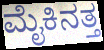
ಮೈಕಿನತ್ತ